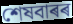
শেষবাৰৰ